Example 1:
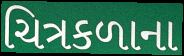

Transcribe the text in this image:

ચિત્રકળાના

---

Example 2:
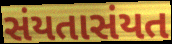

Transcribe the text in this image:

સંયતાસંયત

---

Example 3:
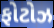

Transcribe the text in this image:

ફોટોઝ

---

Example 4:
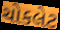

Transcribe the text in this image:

ચોકલેટ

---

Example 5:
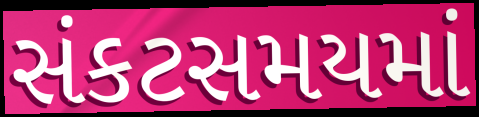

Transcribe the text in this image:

સંકટસમયમાં